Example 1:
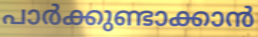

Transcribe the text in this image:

പാർക്കുണ്ടാക്കാൻ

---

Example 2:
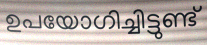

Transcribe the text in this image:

ഉപയോഗിച്ചിട്ടുണ്ട്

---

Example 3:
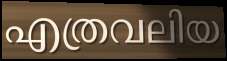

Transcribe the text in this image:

എത്രവലിയ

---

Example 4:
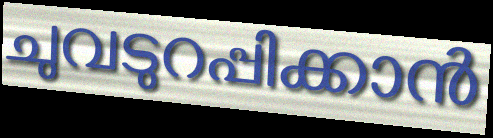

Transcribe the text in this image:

ചുവടുറപ്പിക്കാൻ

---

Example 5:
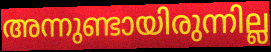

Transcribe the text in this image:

അന്നുണ്ടായിരുന്നില്ല